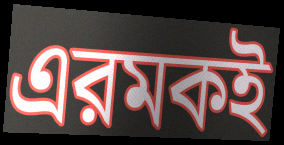
এরমকই